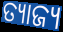
ତ୍ୟାଜ୍ୟ